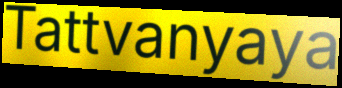
Tattvanyaya